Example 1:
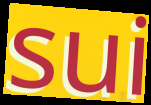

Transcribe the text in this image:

sui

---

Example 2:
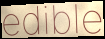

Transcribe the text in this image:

edible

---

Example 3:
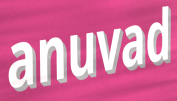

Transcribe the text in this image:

anuvad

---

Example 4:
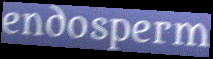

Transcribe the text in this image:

endosperm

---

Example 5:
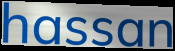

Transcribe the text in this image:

hassan